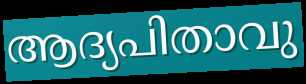
ആദ്യപിതാവു